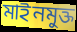
মাইনমুক্ত